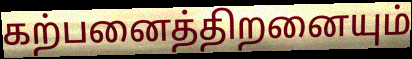
கற்பனைத்திறனையும்